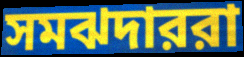
সমঝদাররা